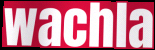
wachla